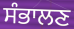
ਸੰਭਾਲਣ